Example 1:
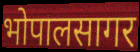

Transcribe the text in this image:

भोपालसागर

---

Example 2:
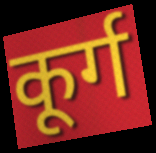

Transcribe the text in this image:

कूर्ग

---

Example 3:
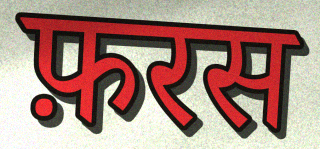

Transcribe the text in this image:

फ़रस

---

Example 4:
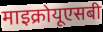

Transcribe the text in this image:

माइक्रोयूएसबी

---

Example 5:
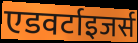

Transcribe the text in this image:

एडवर्टाइजर्स